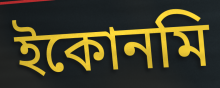
ইকোনমি